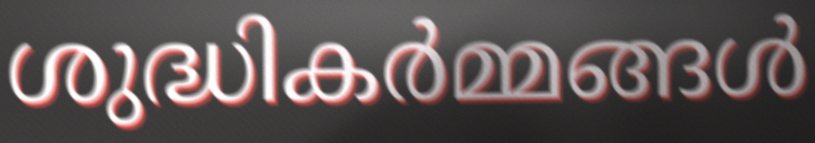
ശുദ്ധികർമ്മങ്ങൾ